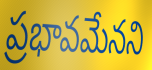
ప్రభావమేనని